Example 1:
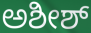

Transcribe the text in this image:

ಅಶೀಶ್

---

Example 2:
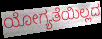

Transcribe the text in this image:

ಯೋಗ್ಯತೆಯಿಲ್ಲದ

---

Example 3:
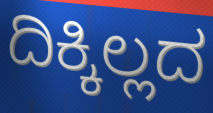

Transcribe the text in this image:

ದಿಕ್ಕಿಲ್ಲದ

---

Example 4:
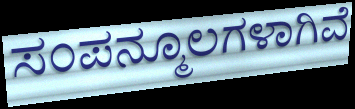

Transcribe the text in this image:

ಸಂಪನ್ಮೂಲಗಳಾಗಿವೆ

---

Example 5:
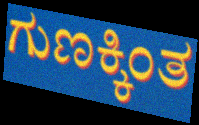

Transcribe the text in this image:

ಗುಣಕ್ಕಿಂತ